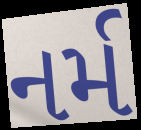
નર્મ